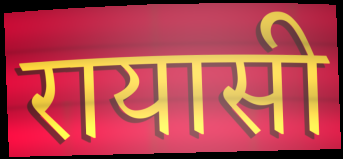
रायासी